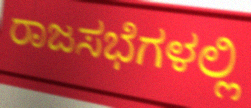
ರಾಜಸಭೆಗಳಲ್ಲಿ